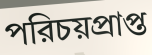
পরিচয়প্রাপ্ত